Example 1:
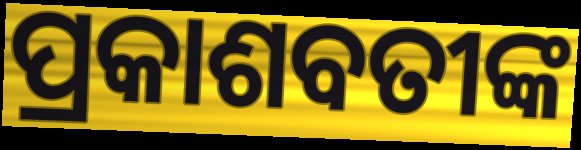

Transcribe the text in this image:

ପ୍ରକାଶବତୀଙ୍କ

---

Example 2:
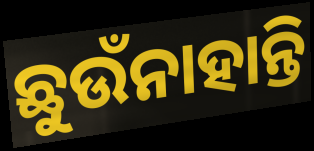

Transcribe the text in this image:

ଛୁଉଁନାହାନ୍ତି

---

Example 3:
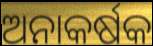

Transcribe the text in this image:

ଅନାକର୍ଷକ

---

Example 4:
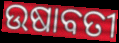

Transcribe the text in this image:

ଉଷାବତୀ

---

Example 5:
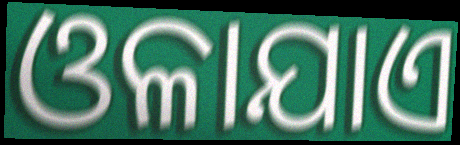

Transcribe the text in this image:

ଓଳାଯାଏ